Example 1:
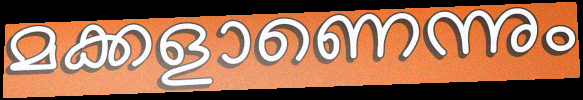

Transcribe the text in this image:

മക്കളാണെന്നും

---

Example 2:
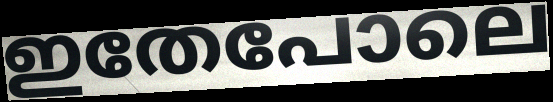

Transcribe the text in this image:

ഇതേപോലെ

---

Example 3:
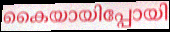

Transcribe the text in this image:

കൈയായിപ്പോയി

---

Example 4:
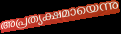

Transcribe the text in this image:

അപ്രത്യക്ഷമായെന്നു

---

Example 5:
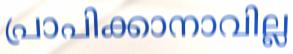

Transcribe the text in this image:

പ്രാപിക്കാനാവില്ല